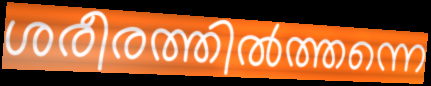
ശരീരത്തിൽത്തന്നെ